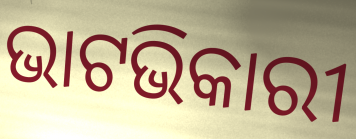
ଭାଟଭିକାରୀ